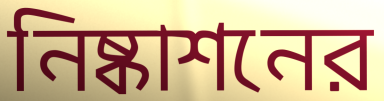
নিষ্কাশনের